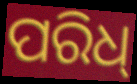
ପରିଧ୍